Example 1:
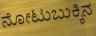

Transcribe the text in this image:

ನೋಟುಬುಕ್ಕಿನ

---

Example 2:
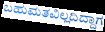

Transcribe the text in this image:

ಬಹುಮತವಿಲ್ಲದಿದ್ದಾಗ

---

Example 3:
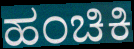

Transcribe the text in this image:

ಹಂಚಿಕಿ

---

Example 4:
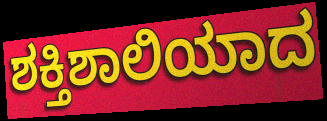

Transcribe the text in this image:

ಶಕ್ತಿಶಾಲಿಯಾದ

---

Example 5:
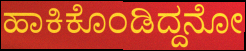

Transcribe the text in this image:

ಹಾಕಿಕೊಂಡಿದ್ದನೋ